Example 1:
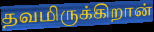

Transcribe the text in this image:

தவமிருக்கிறான்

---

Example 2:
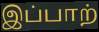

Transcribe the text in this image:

இப்பாற்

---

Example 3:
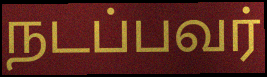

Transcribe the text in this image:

நடப்பவர்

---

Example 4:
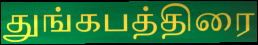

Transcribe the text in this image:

துங்கபத்திரை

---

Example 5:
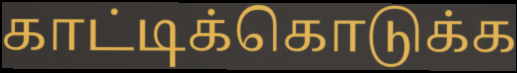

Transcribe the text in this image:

காட்டிக்கொடுக்க